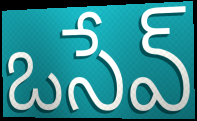
ఒసేవ్